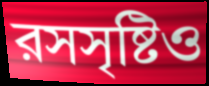
রসসৃষ্টিও